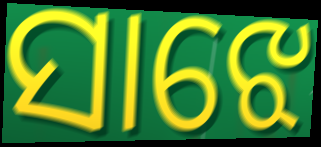
ସାଝେ